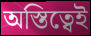
অস্তিত্বেই